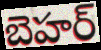
బెహర్